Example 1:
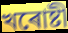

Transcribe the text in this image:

খৰোষ্টী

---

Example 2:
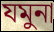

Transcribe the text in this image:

যমুনা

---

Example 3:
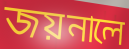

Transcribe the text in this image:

জয়নালে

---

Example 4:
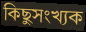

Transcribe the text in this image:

কিছুসংখ্যক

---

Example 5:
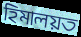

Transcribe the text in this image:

হিমালয়ত